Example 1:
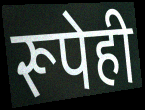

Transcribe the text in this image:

रूपेही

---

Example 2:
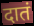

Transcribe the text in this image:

दातं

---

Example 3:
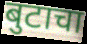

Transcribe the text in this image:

बुटाचा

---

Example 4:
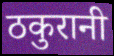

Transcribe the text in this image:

ठकुरानी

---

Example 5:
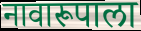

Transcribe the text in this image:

नावारूपाला